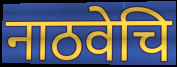
नाठवेचि